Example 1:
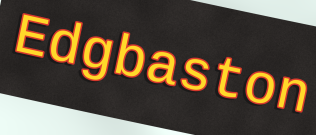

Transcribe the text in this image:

Edgbaston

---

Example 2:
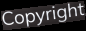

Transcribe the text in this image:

Copyright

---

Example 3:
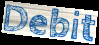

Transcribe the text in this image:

Debit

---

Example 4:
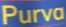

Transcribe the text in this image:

Purva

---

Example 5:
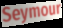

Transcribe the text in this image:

Seymour